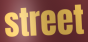
street